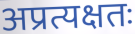
अप्रत्यक्षतः